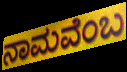
ನಾಮವೆಂಬ